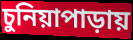
চুনিয়াপাড়ায়